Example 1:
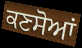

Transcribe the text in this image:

ਕਣਸੋਆਂ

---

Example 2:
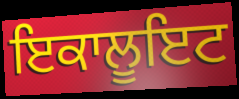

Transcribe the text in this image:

ਇਕਾਲੂਇਟ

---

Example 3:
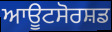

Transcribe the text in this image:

ਆਊਟਸੋਰਸ਼ਡ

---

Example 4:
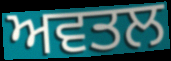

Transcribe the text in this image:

ਅਵਤਲ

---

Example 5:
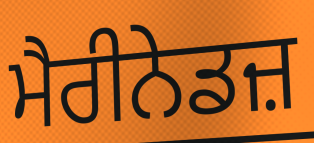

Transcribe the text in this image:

ਮੈਰੀਨੇਡਜ਼